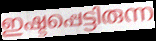
ഇഷ്ടപ്പെട്ടിരുന്ന